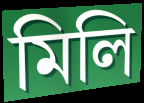
মিলি